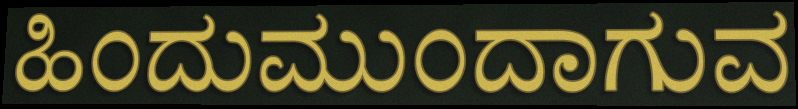
ಹಿಂದುಮುಂದಾಗುವ